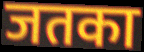
जतका